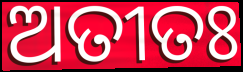
ଅତୀତଃ